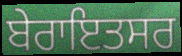
ਬੇਰਾਇਤਸਰ